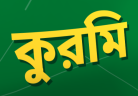
কুরমি